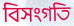
বিসংগতি